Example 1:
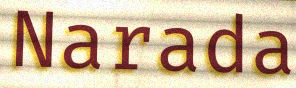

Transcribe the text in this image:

Narada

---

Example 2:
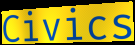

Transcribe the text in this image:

Civics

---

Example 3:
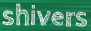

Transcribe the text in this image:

shivers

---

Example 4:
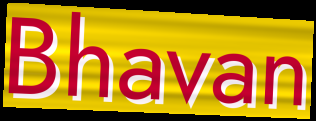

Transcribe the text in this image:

Bhavan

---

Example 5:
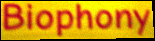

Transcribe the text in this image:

Biophony